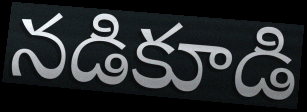
నడికూడి